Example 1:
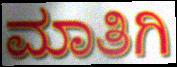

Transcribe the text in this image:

ಮಾತಿಗಿ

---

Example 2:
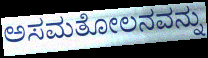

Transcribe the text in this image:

ಅಸಮತೋಲನವನ್ನು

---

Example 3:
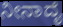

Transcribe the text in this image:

ನೀನಾದೈ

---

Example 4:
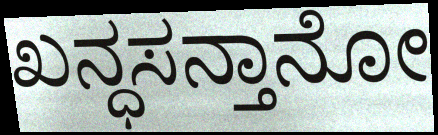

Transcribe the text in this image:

ಖನ್ಧಸನ್ತಾನೋ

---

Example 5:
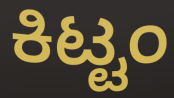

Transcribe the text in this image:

ಕಿಟ್ಟಂ